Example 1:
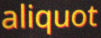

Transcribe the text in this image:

aliquot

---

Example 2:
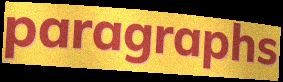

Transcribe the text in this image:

paragraphs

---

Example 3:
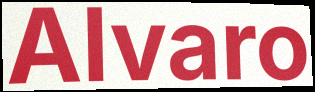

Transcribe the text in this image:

Alvaro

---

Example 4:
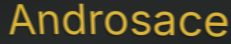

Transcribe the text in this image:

Androsace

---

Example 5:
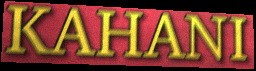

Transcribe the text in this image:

KAHANI